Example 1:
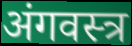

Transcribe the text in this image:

अंगवस्त्र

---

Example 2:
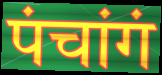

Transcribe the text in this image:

पंचांगं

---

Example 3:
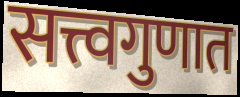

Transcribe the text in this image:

सत्त्वगुणात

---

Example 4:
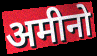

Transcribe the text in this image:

अमीनो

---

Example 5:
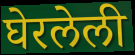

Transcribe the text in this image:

घेरलेली